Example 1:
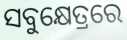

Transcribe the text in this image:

ସବୁକ୍ଷେତ୍ରରେ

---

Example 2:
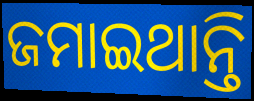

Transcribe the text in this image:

ଜମାଇଥାନ୍ତି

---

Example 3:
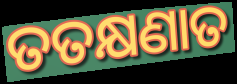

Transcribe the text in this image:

ତତକ୍ଷଣାତ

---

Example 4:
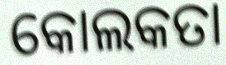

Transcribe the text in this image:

କୋଲକତା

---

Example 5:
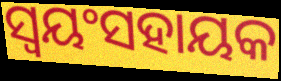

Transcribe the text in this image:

ସ୍ଵୟଂସହାୟକ